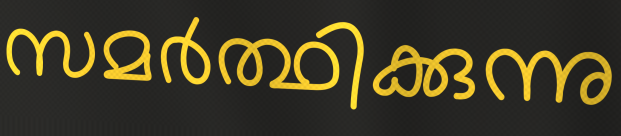
സമർത്ഥിക്കുന്നു